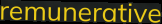
remunerative